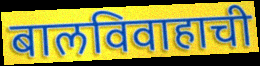
बालविवाहाची